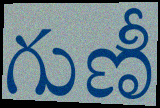
గుణీ